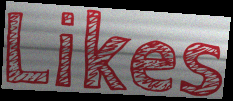
Likes